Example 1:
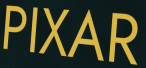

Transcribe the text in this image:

PIXAR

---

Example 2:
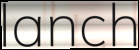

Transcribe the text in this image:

lanch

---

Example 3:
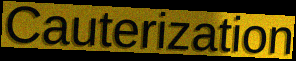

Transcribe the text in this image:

Cauterization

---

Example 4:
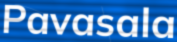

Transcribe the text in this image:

Pavasala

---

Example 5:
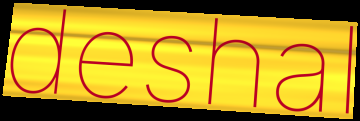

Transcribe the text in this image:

deshal